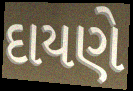
દાયણે